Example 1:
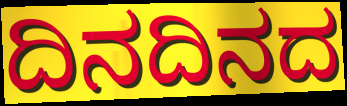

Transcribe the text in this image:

ದಿನದಿನದ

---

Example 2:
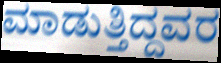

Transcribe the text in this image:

ಮಾಡುತ್ತಿದ್ದವರ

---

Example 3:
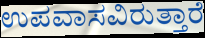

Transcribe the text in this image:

ಉಪವಾಸವಿರುತ್ತಾರೆ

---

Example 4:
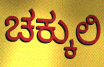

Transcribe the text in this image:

ಚಕ್ಕುಲಿ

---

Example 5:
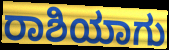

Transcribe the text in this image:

ರಾಶಿಯಾಗು